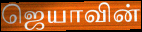
ஜெயாவின்